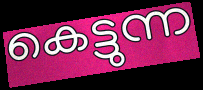
കെട്ടുന്ന